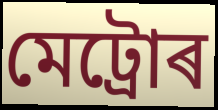
মেট্ৰোৰ